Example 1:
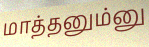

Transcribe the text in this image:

மாத்தனும்னு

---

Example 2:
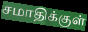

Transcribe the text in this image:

சமாதிக்குள்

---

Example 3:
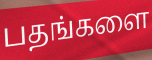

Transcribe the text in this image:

பதங்களை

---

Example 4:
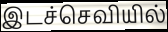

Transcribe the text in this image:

இடச்செவியில்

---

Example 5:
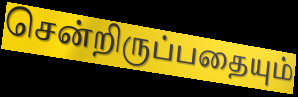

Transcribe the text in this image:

சென்றிருப்பதையும்